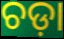
ଚଡ଼ା